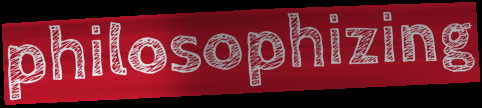
philosophizing